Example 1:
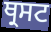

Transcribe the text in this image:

ਥ੍ਰਸਟ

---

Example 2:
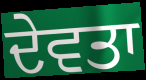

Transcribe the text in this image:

ਦੇਵਤਾ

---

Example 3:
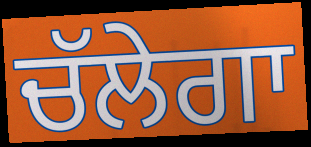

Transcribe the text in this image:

ਚੱਲੇਗਾ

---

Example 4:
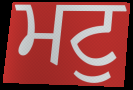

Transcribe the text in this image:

ਮਟੁ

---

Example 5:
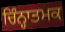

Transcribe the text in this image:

ਚਿੰਨ੍ਹਾਤਮਕ